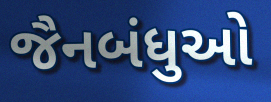
જૈનબંધુઓ